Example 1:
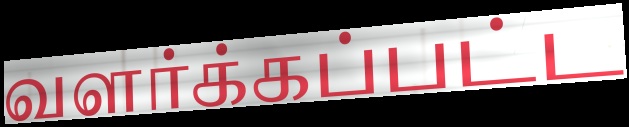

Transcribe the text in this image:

வளர்க்கப்பட்ட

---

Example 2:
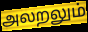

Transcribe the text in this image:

அலறலும்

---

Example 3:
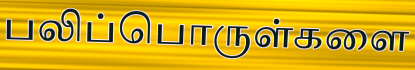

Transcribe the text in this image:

பலிப்பொருள்களை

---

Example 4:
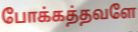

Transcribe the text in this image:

போக்கத்தவளே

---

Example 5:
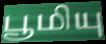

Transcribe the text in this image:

பூமியு